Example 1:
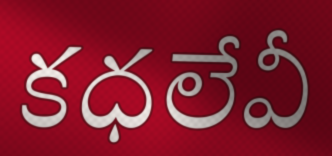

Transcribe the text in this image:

కధలేవీ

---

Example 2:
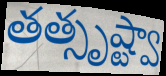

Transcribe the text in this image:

తత్సృష్ట్వా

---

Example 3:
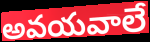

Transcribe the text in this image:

అవయవాలే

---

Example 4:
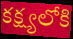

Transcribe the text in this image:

కక్ష్యలోకి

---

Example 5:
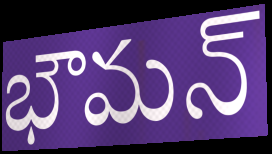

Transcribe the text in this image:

భౌమన్